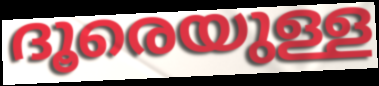
ദൂരെയുള്ള